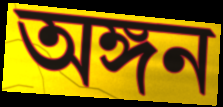
অঙ্গন